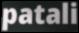
patali